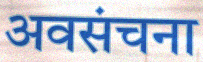
अवसंचना